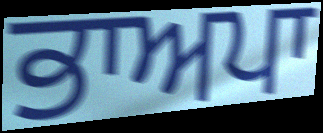
ਭਾਅਪਾ